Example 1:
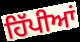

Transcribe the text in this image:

ਹਿੱਪੀਆਂ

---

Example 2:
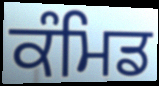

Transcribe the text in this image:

ਕੰਮਿਡ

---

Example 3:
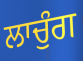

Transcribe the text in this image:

ਲਾਚੁੰਗ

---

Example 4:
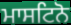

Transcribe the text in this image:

ਮਾਸਟਿਨੋ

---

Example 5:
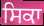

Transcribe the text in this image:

ਸਿਕਾ